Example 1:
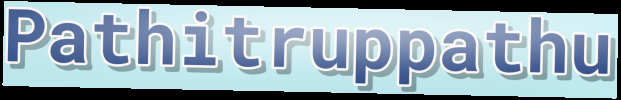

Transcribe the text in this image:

Pathitruppathu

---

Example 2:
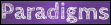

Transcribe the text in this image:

Paradigms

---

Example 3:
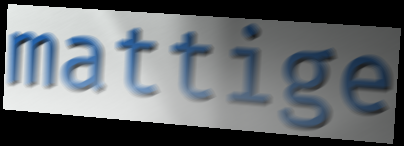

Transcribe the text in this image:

mattige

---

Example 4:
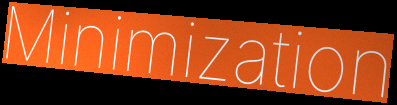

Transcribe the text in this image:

Minimization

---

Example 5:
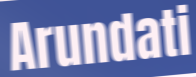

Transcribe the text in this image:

Arundati